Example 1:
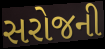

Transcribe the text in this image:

સરોજની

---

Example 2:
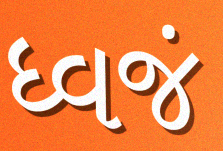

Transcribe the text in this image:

ધ્વજં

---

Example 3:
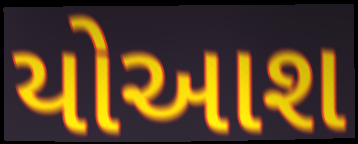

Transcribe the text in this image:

યોઆશ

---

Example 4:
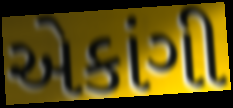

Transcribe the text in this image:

એકાંગી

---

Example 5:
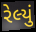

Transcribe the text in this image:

રેલ્યું